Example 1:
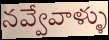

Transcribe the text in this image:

నవ్వేవాళ్ళు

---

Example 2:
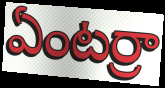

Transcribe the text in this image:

ఏంటర్రా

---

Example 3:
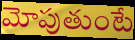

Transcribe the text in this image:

మోపుతుంటే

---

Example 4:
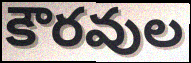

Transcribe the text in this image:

కౌరవుల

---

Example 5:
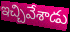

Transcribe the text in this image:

ఇచ్చివేశాడు